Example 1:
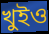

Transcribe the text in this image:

খুইও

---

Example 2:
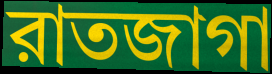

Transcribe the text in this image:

রাতজাগা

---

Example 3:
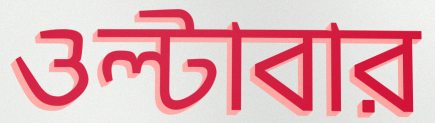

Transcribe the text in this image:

ওল্টাবার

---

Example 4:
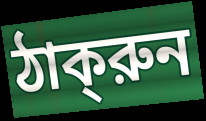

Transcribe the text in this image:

ঠাক্‌রুন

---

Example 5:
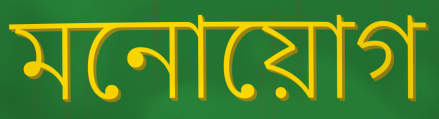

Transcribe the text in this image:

মনোয়োগ